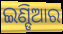
ଇଣ୍ଡିଆର